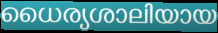
ധൈര്യശാലിയായ